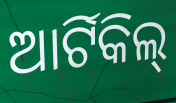
ଆର୍ଟିକିଲ୍